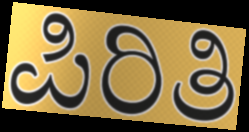
ಪಿರಿತಿ